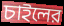
চাইলের